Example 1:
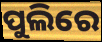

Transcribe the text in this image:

ପୁଲିରେ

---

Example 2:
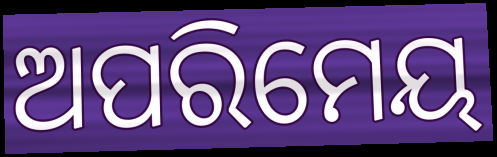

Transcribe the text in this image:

ଅପରିମେୟ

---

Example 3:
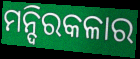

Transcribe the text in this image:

ମନ୍ଦିରକଳାର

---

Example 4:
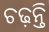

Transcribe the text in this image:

ଚଢ଼ନ୍ତି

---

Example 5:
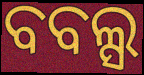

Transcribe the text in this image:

ବବଲ୍ସ